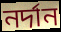
নর্দান